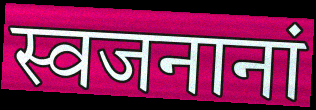
स्वजनानां